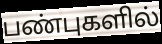
பண்புகளில்